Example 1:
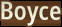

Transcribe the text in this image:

Boyce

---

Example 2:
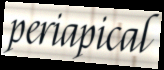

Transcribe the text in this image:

periapical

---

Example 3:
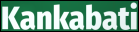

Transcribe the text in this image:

Kankabati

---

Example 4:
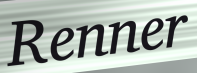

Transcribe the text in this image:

Renner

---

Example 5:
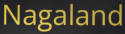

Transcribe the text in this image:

Nagaland